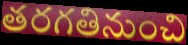
తరగతినుంచి